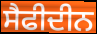
ਸੈਫੀਦੀਨ